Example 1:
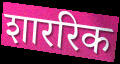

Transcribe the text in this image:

शाररिक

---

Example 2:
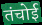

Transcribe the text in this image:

तंचोई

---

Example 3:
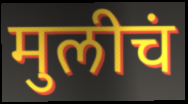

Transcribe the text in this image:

मुलीचं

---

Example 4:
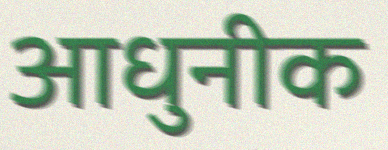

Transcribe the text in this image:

आधुनीक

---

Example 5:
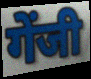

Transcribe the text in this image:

गेंजी